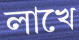
লাখে